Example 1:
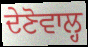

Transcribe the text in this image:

ਦੇਣੋਵਾਲ੍ਹ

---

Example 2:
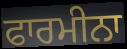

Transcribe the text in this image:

ਫਾਰਮੀਨਾ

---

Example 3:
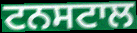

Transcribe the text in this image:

ਟਨਸਟਾਲ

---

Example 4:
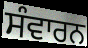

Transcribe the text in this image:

ਸੰਵਾਰਨ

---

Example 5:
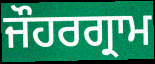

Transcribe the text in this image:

ਜੌਹਰਗ੍ਰਾਮ